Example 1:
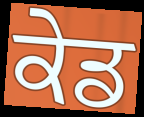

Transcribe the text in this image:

ਕੇਡ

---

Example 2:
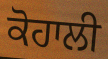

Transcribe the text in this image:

ਕੋਹਾਲੀ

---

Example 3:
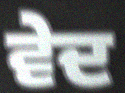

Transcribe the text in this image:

ਵੇਦ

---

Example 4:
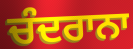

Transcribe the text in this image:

ਚੰਦਰਾਨਾ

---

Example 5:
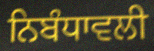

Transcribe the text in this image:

ਨਿਬੰਧਾਵਲੀ